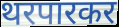
थरपारकर